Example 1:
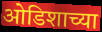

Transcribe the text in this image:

ओडिशाच्या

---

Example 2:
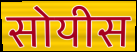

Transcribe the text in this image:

सोयीस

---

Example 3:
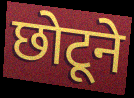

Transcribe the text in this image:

छोटूने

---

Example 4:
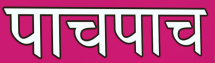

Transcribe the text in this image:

पाचपाच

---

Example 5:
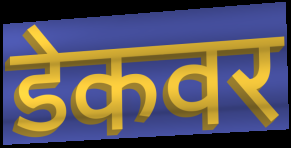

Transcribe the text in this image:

डेकवर